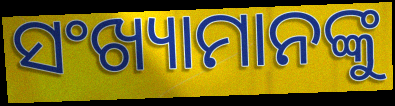
ସଂଖ୍ୟାମାନଙ୍କୁ